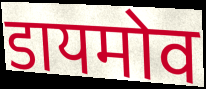
डायमोव